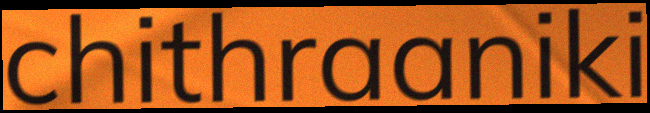
chithraaniki